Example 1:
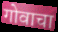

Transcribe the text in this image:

गोवाचा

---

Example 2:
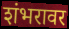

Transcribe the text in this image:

शंभरावर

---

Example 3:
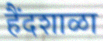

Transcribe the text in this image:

हैंदशाळा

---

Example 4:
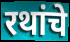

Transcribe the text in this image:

रथांचे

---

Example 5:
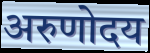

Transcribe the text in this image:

अरुणोदय